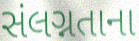
સંલગ્નતાના